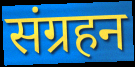
संग्रहन